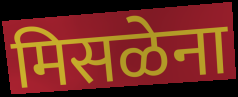
मिसळेना